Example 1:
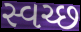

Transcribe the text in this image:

સ્વચ્છ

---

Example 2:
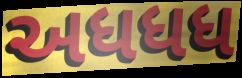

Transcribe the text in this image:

અધધધ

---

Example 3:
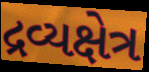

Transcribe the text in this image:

દ્રવ્યક્ષેત્ર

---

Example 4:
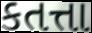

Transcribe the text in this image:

કતત્તા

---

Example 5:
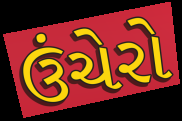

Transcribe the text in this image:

ઉંચેરો